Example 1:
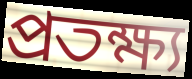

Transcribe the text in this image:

প্ৰতক্ষ্য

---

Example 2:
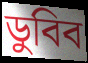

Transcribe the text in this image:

ডুবিব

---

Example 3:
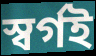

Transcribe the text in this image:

স্বৰ্গই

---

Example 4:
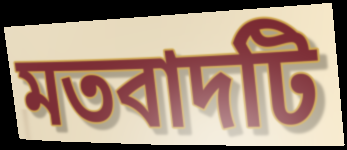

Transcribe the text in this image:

মতবাদটি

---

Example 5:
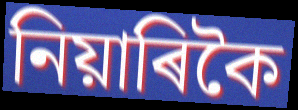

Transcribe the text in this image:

নিয়াৰিকৈ